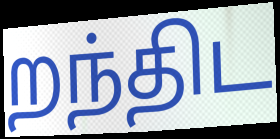
றந்திட